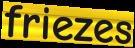
friezes